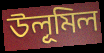
উলূমিল